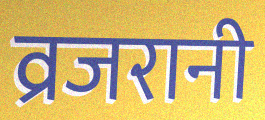
व्रजरानी